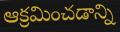
ఆక్రమించడాన్ని